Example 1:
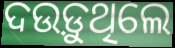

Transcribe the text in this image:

ଦଉଡ଼ୁଥିଲେ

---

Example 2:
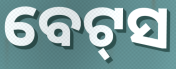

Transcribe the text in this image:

ବେଟ୍‍ସ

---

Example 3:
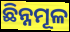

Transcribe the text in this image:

ଛିନ୍ନମୂଳ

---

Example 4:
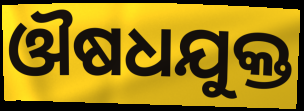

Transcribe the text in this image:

ଔଷଧଯୁକ୍ତ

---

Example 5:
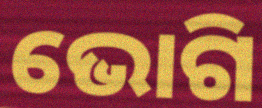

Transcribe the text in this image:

ଭୋଗି